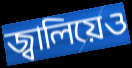
জ্বালিয়েও